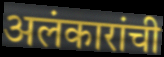
अलंकारांची